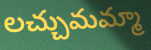
లచ్చుమమ్మా